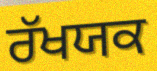
ਰੱਖਯਕ